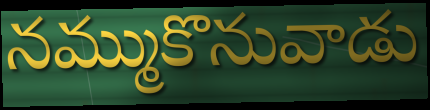
నమ్ముకొనువాడు